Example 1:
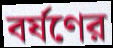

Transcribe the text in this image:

বর্ষণের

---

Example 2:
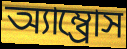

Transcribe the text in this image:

অ্যাম্ব্রোস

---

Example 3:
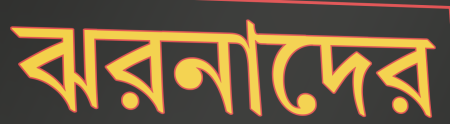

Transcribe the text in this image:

ঝরনাদের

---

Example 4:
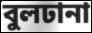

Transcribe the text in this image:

বুলঢানা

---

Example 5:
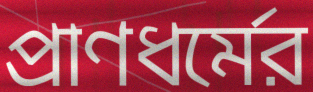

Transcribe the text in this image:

প্রাণধর্মের